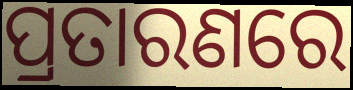
ପ୍ରତାରଣରେ